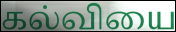
கல்வியை